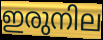
ഇരുനില